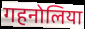
गहनोलिया